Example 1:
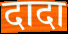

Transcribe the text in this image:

दादा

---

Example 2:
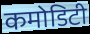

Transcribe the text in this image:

कमोडिटी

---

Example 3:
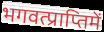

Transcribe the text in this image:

भगवत्प्राप्तिमें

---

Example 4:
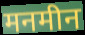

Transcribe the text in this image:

मनमीन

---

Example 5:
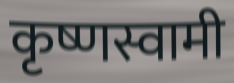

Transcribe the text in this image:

कृष्णस्वामी